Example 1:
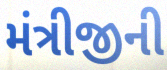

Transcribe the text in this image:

મંત્રીજીની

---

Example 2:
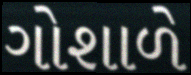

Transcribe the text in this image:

ગોશાળે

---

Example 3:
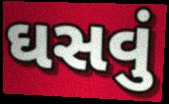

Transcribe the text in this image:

ઘસવું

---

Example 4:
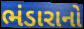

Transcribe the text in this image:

ભંડારાનો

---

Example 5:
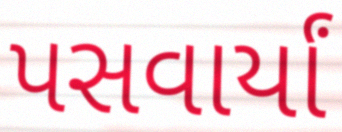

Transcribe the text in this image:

પસવાર્યાં